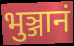
भुञ्जानं